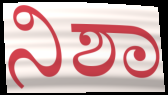
ನಿಶಾ